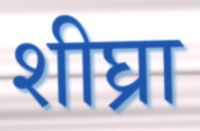
शीघ्रा